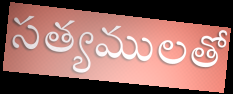
సత్యములతో